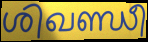
ശിഖണ്ഡീ